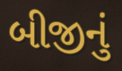
બીજીનું